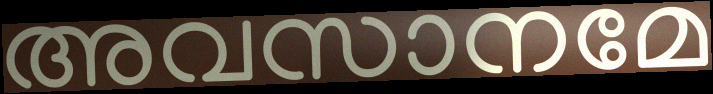
അവസാനമേ